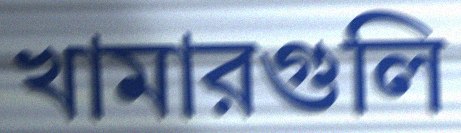
খামারগুলি